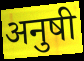
अनुषी